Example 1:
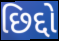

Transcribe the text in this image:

છિદ્દો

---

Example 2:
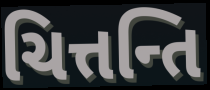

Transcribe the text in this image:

ચિત્તન્તિ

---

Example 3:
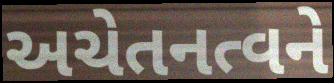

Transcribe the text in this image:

અચેતનત્વને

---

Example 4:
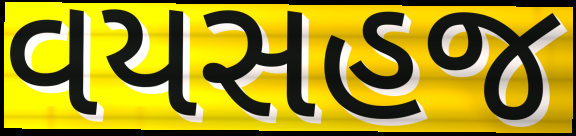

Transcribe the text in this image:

વયસહજ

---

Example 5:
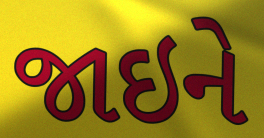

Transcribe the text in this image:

જાઇને